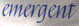
emergent